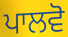
ਪਾਲਵੋ